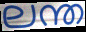
ലന്ത